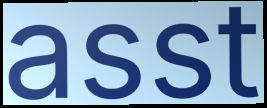
asst